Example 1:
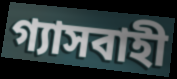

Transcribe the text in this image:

গ্যাসবাহী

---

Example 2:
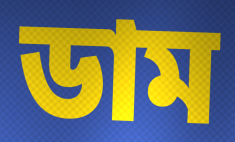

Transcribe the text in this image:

ডাম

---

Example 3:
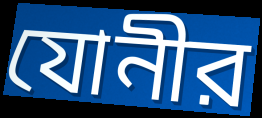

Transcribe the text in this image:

যোনীর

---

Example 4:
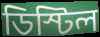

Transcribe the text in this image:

ডিস্টিল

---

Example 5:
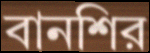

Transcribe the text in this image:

বানশির